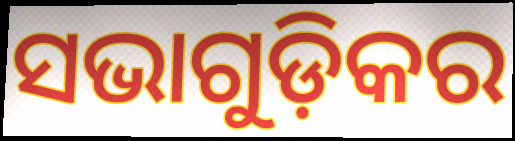
ସଭାଗୁଡ଼ିକର